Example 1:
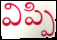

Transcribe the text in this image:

విప్పి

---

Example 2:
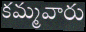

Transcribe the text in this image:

కమ్మవారు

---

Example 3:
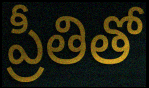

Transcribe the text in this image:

ప్రీతితో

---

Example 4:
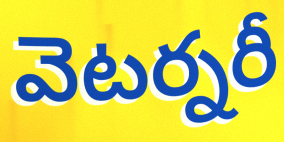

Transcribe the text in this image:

వెటర్నరీ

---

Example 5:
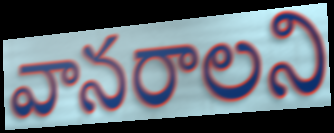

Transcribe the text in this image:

వానరాలని